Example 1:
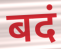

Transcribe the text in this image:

बदं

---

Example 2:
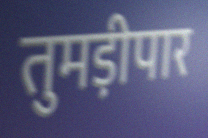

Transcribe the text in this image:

तुमड़ीपार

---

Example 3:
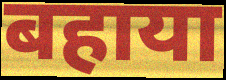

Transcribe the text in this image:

बहाया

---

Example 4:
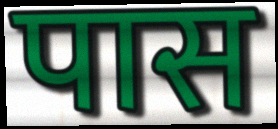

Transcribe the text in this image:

पास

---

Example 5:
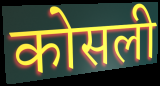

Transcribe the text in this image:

कोसली